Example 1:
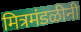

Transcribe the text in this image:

मित्रमंडळीनी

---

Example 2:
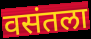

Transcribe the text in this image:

वसंतला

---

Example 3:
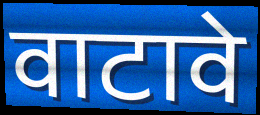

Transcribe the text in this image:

वाटावे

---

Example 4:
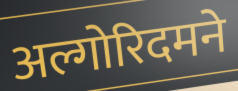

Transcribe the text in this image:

अल्गोरिदमने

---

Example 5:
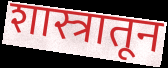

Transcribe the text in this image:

शास्त्रातून